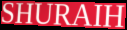
SHURAIH